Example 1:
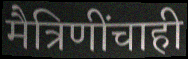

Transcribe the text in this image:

मैत्रिणींचाही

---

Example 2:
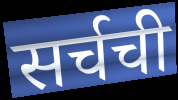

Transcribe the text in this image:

सर्चची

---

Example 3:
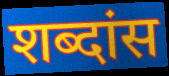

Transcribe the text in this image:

शब्दांस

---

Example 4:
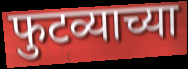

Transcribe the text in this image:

फुटव्याच्या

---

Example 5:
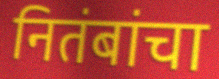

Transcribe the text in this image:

नितंबांचा